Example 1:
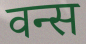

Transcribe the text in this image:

वन्स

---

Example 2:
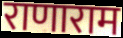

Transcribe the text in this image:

राणाराम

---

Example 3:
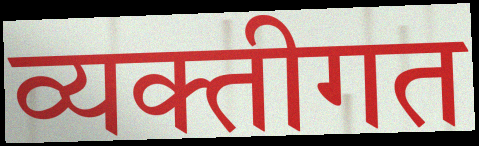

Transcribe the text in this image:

व्यक्तीगत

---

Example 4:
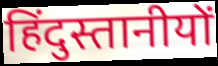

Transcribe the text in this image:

हिंदुस्तानीयों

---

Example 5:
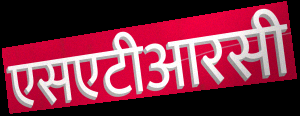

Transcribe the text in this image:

एसएटीआरसी